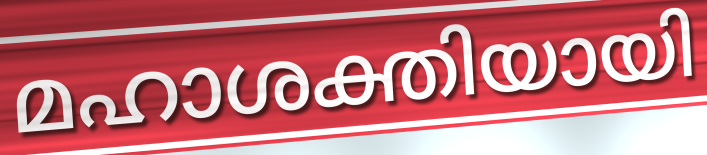
മഹാശക്തിയായി